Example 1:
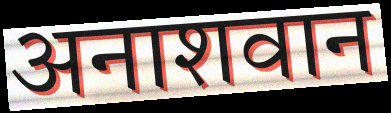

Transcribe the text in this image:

अनाशवान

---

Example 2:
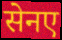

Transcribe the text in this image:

सेनए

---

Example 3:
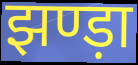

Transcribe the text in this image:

झण्ड़ा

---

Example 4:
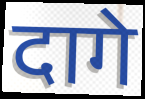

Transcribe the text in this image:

दागे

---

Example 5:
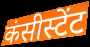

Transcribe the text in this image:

कंसीस्टेंट